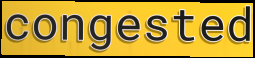
congested